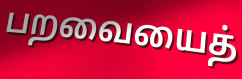
பறவையைத்